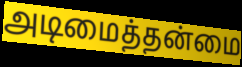
அடிமைத்தன்மை